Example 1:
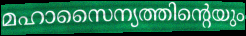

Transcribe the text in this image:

മഹാസൈന്യത്തിന്റെയും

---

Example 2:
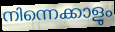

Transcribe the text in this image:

നിന്നെക്കാളും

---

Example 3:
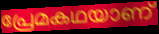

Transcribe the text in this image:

പ്രേമകഥയാണ്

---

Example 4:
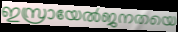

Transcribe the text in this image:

ഇസ്രായേൽജനതയെ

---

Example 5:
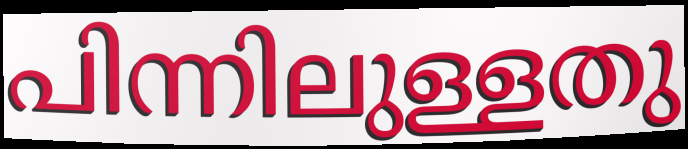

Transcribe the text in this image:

പിന്നിലുള്ളതു